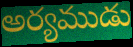
అర్యముడు